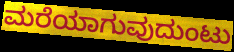
ಮರೆಯಾಗುವುದುಂಟು